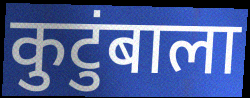
कुटुंबाला